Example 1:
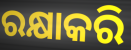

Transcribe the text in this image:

ରକ୍ଷାକରି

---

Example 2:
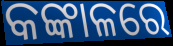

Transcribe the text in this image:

କଙ୍କାଳରେ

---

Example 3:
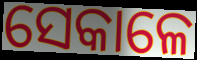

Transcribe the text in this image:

ସେକାଳେ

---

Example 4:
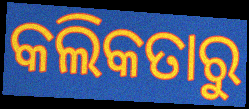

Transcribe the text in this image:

କଲିକତାରୁ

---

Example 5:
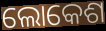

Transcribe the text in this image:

ଲୋକେଶ